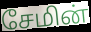
சேமின்